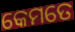
କେମତେ